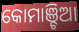
କୋମାଞ୍ଚିଆ